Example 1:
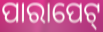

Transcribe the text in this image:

ପାରାପେଟ୍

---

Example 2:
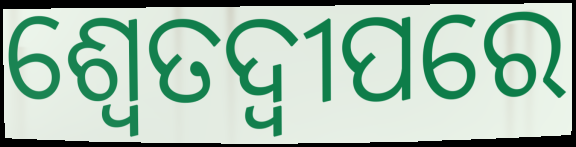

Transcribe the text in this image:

ଶ୍ୱେତଦ୍ୱୀପରେ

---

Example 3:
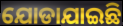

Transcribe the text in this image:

ଯୋଡାଯାଇଛି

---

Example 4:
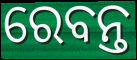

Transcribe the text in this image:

ରେବନ୍ତ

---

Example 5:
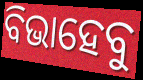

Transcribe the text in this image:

ବିଭାହେବୁ